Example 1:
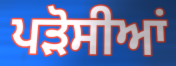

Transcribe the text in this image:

ਪੜੋਸੀਆਂ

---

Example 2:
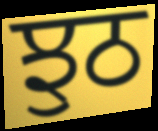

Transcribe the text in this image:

ਝੁਠ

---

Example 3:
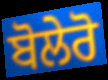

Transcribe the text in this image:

ਬੋਲੇਰੋ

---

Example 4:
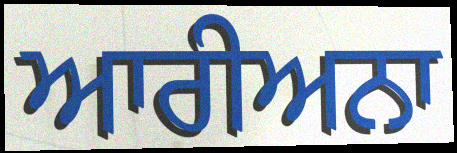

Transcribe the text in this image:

ਆਰੀਅਨਾ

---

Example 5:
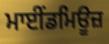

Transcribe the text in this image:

ਮਾਈਂਡਮਿਊਜ਼